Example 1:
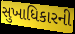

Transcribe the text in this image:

સુખાધિકારની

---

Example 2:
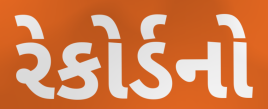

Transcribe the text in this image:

રેકોર્ડનો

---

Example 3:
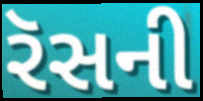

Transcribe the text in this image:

રૅસની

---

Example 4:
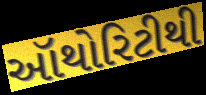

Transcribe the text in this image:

ઑથોરિટીથી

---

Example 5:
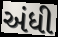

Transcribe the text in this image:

અંધી